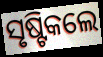
ସୃଷ୍ଟିକଲେ